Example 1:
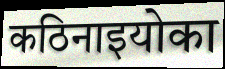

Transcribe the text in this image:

कठिनाइयोका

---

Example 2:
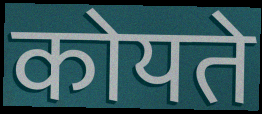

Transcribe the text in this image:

कोयते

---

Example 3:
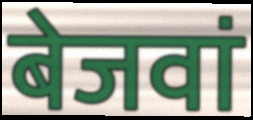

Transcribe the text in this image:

बेजवां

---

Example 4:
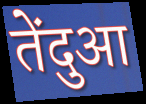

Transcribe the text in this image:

तेंदुआ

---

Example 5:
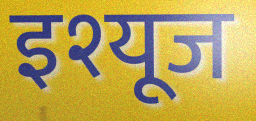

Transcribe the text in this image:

इश्यूज